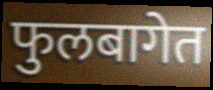
फुलबागेत